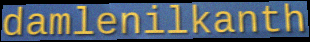
damlenilkanth